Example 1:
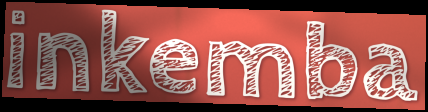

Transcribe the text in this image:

inkemba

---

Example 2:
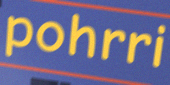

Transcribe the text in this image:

pohrri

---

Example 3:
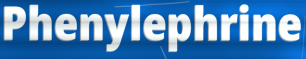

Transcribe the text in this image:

Phenylephrine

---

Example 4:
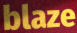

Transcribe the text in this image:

blaze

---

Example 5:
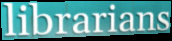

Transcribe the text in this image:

librarians